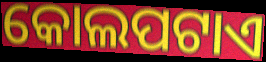
କୋଲପଟାଏ